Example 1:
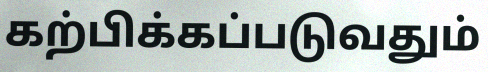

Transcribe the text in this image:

கற்பிக்கப்படுவதும்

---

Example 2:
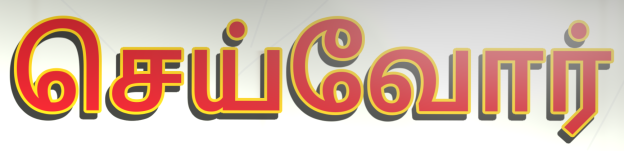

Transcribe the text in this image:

செய்வோர்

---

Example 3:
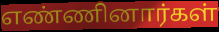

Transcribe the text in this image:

எண்ணினார்கள்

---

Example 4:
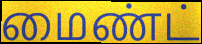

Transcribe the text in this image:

மைண்ட்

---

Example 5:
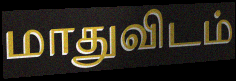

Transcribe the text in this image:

மாதுவிடம்